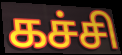
கச்சி